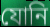
যোনি